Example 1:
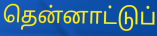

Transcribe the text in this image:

தென்னாட்டுப்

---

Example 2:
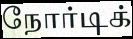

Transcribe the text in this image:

நோர்டிக்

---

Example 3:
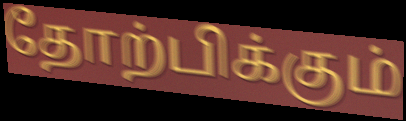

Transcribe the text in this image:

தோற்பிக்கும்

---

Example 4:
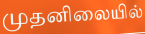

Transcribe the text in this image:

முதனிலையில்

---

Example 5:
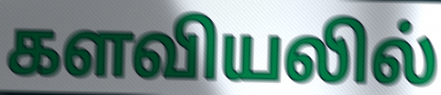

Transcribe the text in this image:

களவியலில்